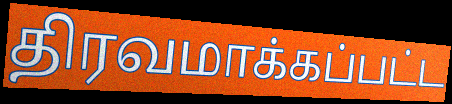
திரவமாக்கப்பட்ட